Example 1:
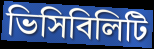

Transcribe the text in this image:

ভিসিবিলিটি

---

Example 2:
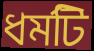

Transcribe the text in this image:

ধর্মটি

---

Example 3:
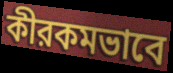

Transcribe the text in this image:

কীরকমভাবে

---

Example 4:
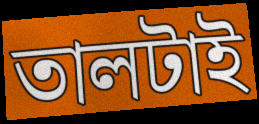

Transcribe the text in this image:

তালটাই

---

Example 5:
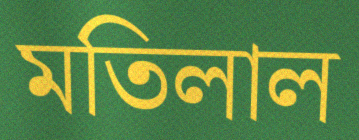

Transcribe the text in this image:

মতিলাল